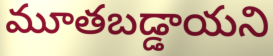
మూతబడ్డాయని